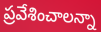
ప్రవేశించాలన్నా